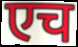
एच